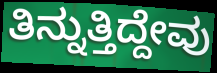
ತಿನ್ನುತ್ತಿದ್ದೇವು